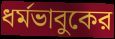
ধর্মভাবুকের